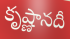
కృష్ణానదీ